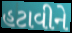
હટાવીને